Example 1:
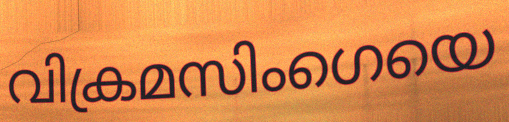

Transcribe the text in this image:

വിക്രമസിംഗെയെ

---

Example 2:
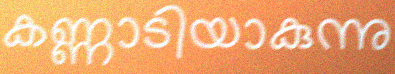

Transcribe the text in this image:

കണ്ണാടിയാകുന്നു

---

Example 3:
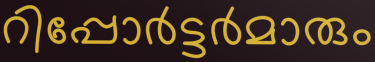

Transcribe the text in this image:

റിപ്പോർട്ടർമാരും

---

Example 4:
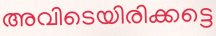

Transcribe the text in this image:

അവിടെയിരിക്കട്ടെ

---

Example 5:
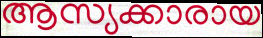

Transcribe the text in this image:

ആസ്യക്കാരായ